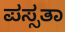
ಪಸ್ಸತಾ